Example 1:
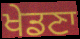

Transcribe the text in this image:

ਖੇਡਣਾ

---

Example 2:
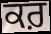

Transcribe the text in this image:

ਕਰ਼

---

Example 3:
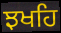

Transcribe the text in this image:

ਝਖਹਿ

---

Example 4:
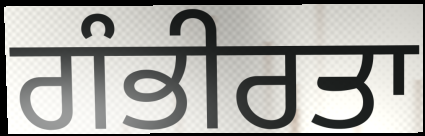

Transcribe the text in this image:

ਗੰਭੀਰਤਾ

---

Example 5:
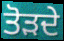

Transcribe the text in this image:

ਤੋੜਦੇ